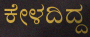
ಕೇಳದಿದ್ದ